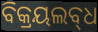
ବିକ୍ରୟଲବ୍‌ଧ